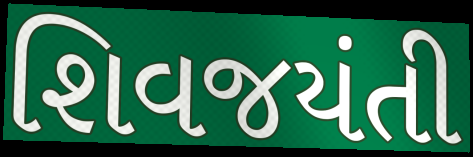
શિવજયંતી